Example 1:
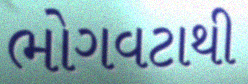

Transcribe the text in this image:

ભોગવટાથી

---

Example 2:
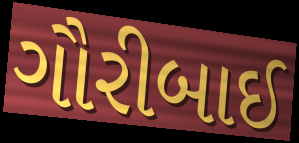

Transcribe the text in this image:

ગૌરીબાઈ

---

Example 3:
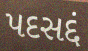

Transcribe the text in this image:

પદસદ્દં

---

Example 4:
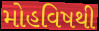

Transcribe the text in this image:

મોહવિષથી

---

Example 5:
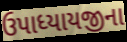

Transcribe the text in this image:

ઉપાધ્યાયજીના